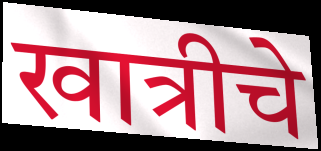
खात्रीचे